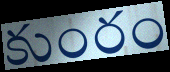
కుంరం